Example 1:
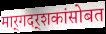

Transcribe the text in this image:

मार्गदर्शकांसोबत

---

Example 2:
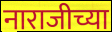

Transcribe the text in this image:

नाराजीच्या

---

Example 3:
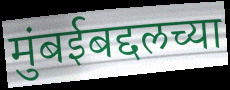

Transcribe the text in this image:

मुंबईबद्दलच्या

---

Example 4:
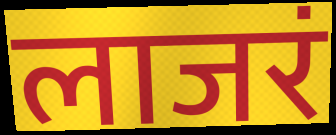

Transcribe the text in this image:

लाजरं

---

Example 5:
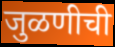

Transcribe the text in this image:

जुळणीची